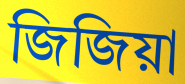
জিজিয়া